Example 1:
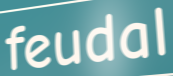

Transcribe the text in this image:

feudal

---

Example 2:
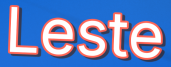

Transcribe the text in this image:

Leste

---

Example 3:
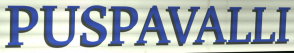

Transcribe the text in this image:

PUSPAVALLI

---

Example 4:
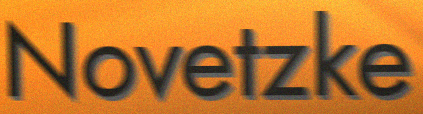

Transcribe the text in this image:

Novetzke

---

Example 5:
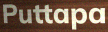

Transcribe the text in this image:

Puttapa